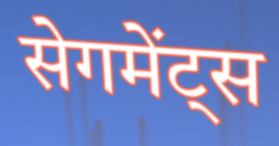
सेगमेंट्स